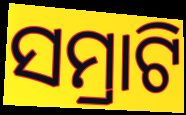
ସମ୍ରାଟି